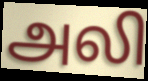
அலி